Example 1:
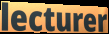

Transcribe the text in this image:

lecturer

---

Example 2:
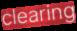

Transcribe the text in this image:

clearing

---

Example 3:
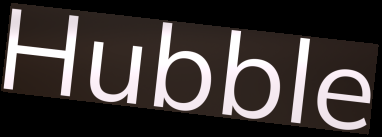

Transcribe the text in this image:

Hubble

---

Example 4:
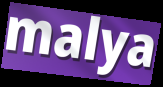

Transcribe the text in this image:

malya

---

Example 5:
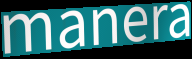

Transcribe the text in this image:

manera